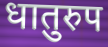
धातुरुप